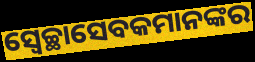
ସ୍ୱେଚ୍ଛାସେବକମାନଙ୍କର